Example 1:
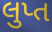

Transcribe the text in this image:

લુપ્ત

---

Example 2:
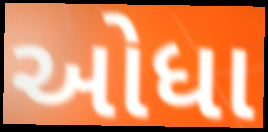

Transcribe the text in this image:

ઓધા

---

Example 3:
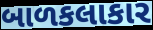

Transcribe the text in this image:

બાળકલાકાર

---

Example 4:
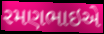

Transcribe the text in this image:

રમણભાઇએ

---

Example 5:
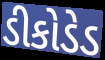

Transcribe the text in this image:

ડીકોડેડ